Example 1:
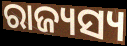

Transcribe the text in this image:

ରାଜ୍ୟସ୍ୟ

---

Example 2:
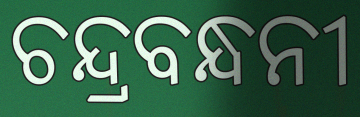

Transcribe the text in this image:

ଚନ୍ଦ୍ରବନ୍ଧନୀ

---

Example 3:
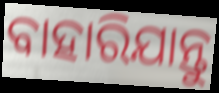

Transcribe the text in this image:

ବାହାରିଯାନ୍ତୁ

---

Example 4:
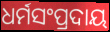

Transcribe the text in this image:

ଧର୍ମସଂପ୍ରଦାୟ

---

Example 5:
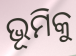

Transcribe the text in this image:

ଭୂମିକୁ